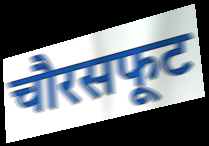
चौरसफूट